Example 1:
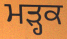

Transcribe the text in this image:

ਮੜ੍ਹਕ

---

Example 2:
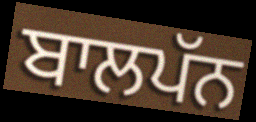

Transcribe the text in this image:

ਬਾਲਪੱਨ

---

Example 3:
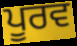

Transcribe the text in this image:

ਪੂਰਵ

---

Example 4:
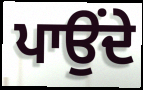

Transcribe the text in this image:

ਪਾਉਂਦੇ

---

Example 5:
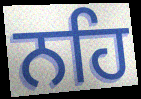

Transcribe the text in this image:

ਨਹਿ